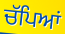
ਚੱਪਿਆਂ